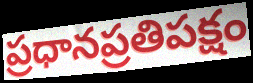
ప్రధానప్రతిపక్షం